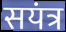
सयंत्र